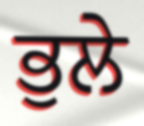
ਭੁਲੇ